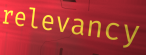
relevancy